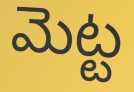
మెట్ట